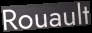
Rouault